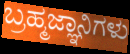
ಬ್ರಹ್ಮಜ್ಞಾನಿಗಳು